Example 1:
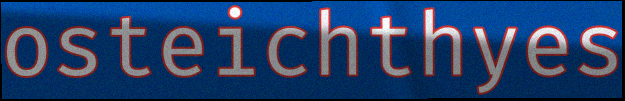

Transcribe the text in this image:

osteichthyes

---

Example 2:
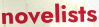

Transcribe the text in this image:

novelists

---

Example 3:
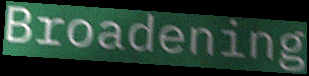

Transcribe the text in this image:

Broadening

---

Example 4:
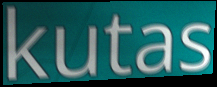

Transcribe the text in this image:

kutas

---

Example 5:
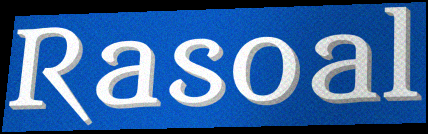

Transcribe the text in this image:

Rasoal